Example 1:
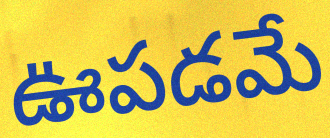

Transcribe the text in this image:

ఊపడమే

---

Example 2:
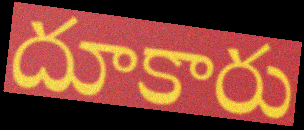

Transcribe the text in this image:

దూకారు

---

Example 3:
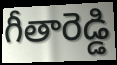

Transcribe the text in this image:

గీతారెడ్డి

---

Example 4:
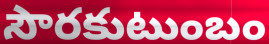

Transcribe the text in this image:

సౌరకుటుంబం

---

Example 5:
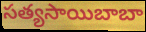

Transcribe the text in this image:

సత్యసాయిబాబా